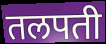
तलपती